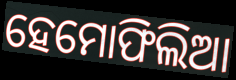
ହେମୋଫିଲିଆ